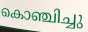
കൊഞ്ചിച്ചു